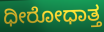
ಧೀರೋಧಾತ್ತ